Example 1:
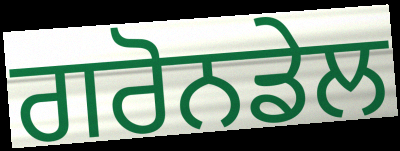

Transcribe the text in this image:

ਗਰੋਨਡੇਲ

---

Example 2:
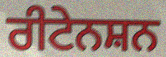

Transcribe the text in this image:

ਰੀਟੇਨਸ਼ਨ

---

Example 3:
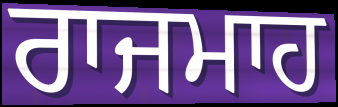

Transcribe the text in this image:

ਰਾਜਮਾਹ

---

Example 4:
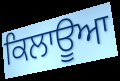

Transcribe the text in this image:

ਕਿਲਾਊਆ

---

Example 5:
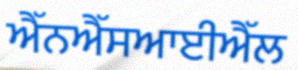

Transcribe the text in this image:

ਐੱਨਐੱਸਆਈਐੱਲ